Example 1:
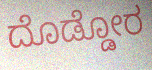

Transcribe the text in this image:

ದೊಡ್ಡೋರ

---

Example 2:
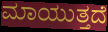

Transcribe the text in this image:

ಮಾಯುತ್ತದೆ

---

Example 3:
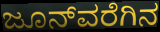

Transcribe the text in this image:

ಜೂನ್‌ವರೆಗಿನ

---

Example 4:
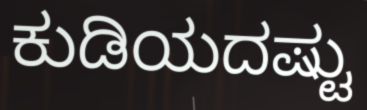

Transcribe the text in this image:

ಕುಡಿಯದಷ್ಟು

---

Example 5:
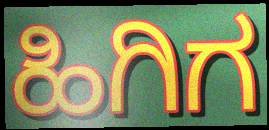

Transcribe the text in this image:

ಹಿಗಿಗ